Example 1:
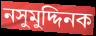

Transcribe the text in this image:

নসুমুদ্দিনক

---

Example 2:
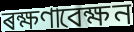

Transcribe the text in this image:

ৰক্ষণাবেক্ষন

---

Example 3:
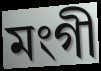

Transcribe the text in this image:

মংগী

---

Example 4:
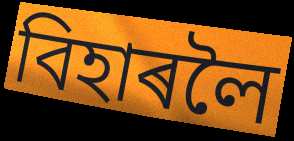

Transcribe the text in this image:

বিহাৰলৈ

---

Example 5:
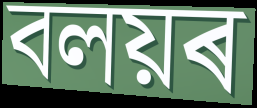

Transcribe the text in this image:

বলয়ৰ